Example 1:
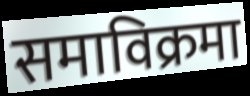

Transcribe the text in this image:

समाविक्रमा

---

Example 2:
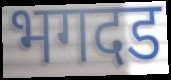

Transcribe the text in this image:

भगदड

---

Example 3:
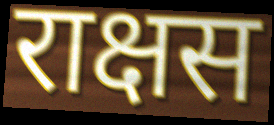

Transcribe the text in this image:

राक्षस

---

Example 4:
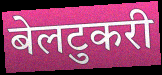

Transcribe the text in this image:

बेलटुकरी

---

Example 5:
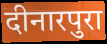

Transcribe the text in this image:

दीनारपुरा